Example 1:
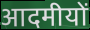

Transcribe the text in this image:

आदमीयों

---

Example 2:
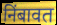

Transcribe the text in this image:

निंबावत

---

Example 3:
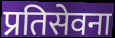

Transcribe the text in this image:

प्रतिसेवना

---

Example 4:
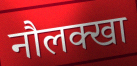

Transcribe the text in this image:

नौलक्खा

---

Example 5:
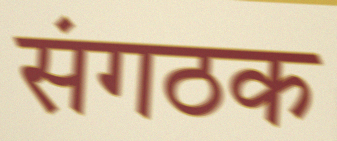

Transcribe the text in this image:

संगठक